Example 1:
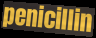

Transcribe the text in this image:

penicillin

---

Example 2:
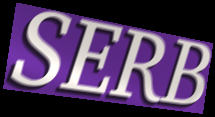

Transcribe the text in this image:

SERB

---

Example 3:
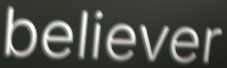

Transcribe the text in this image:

believer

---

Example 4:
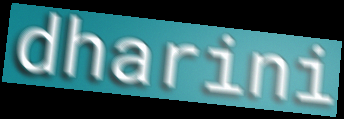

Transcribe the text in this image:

dharini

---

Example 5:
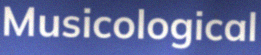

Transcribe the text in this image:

Musicological